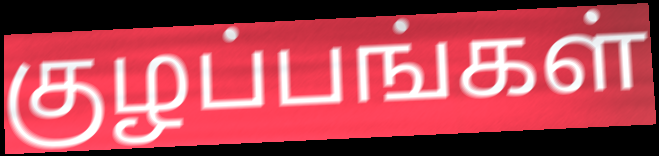
குழப்பங்கள்